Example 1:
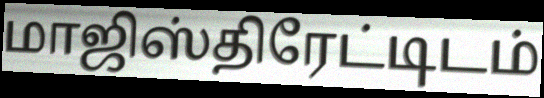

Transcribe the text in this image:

மாஜிஸ்திரேட்டிடம்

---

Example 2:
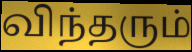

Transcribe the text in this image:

விந்தரும்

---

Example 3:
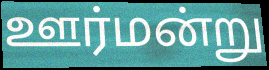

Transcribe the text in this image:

ஊர்மன்று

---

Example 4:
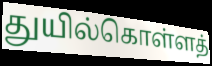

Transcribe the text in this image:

துயில்கொள்ளத்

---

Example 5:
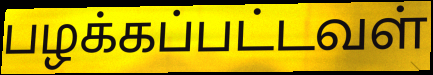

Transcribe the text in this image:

பழக்கப்பட்டவள்